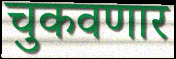
चुकवणार